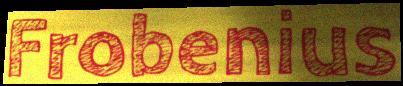
Frobenius